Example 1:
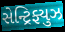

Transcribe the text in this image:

સેન્ટ્રિફ્યુઝ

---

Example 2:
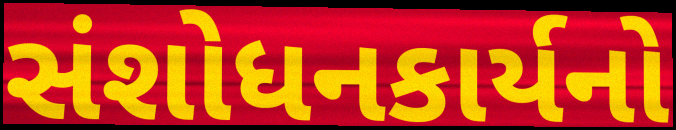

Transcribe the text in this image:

સંશોધનકાર્યનો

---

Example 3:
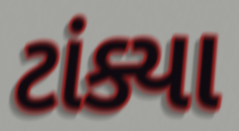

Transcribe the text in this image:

ટાંક્યા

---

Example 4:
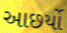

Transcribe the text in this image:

આછર્યો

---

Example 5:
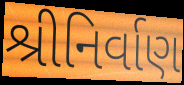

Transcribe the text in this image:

શ્રીનિર્વાણ